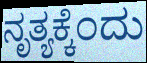
ನೃತ್ಯಕ್ಕೆಂದು